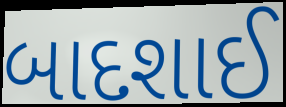
બાદશાઈ